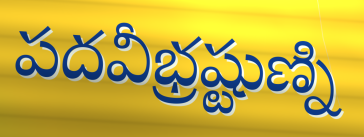
పదవీభ్రష్టుణ్ని